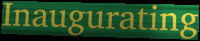
Inaugurating